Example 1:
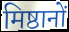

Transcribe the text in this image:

मिष्ठानों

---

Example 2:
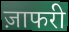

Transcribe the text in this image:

ज़ाफरी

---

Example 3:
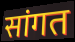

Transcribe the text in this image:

सांगत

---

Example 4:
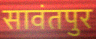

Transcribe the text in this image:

सावंतपुर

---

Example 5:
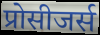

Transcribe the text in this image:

प्रोसीजर्स